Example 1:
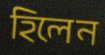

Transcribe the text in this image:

হিলেন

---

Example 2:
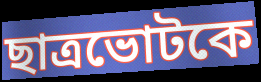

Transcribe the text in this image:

ছাত্রভোটকে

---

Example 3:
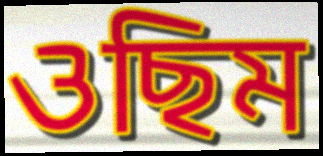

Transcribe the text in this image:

ওছিম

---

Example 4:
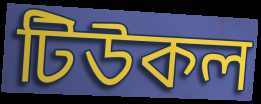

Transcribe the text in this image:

টিউকল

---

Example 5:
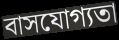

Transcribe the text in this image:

বাসযোগ্যতা